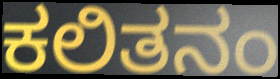
ಕಲಿತನಂ